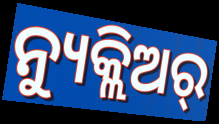
ନ୍ୟୁକ୍ଲିଅର୍